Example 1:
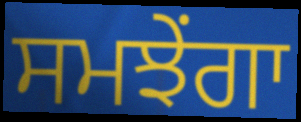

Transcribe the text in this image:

ਸਮਝੇਂਗਾ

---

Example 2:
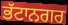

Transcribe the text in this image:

ਭੱਟਾਨਗਰ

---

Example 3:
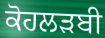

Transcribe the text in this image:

ਕੋਹਲੜਬੀ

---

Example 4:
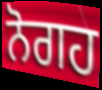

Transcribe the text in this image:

ਨੋਗਹ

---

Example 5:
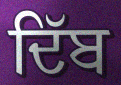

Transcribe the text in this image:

ਦਿੱਬ